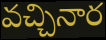
వచ్చినార